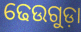
ଢେଉଗୁଡ଼ା